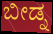
ಬೀಡ್ನ